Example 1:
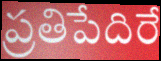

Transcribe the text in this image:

ప్రతిపేదిరే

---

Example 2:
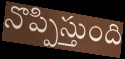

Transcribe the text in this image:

నొప్పిస్తుంది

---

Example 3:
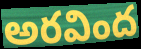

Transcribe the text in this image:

అరవింద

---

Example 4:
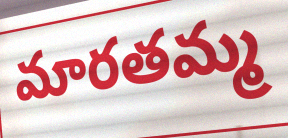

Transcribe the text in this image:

మారతమ్మ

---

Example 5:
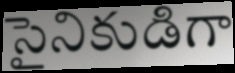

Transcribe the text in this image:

సైనికుడిగా